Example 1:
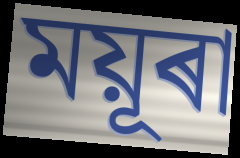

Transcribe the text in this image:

ময়ূৰা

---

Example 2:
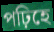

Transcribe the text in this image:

পঢ়িহে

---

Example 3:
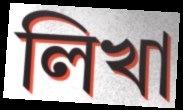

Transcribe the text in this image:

লিখা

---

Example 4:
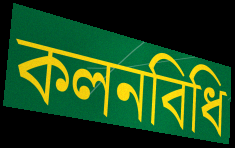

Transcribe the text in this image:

কলনবিধি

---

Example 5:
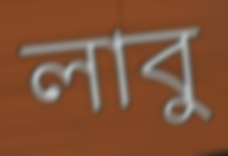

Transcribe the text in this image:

লাবু